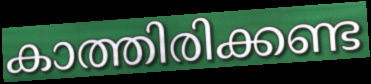
കാത്തിരിക്കണ്ട